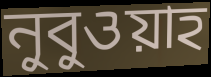
নুবুওয়াহ